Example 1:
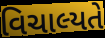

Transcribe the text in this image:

વિચાલ્યતે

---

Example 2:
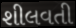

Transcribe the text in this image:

શીલવતી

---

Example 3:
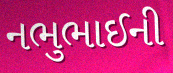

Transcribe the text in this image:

નભુભાઈની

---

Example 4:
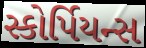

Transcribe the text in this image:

સ્કોર્પિયન્સ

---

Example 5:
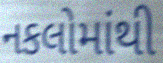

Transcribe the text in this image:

નકલોમાંથી